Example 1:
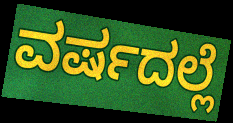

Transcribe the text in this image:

ವರ್ಷದಲ್ಲೆ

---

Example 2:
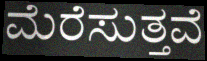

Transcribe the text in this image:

ಮೆರೆಸುತ್ತವೆ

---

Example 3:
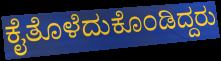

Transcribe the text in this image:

ಕೈತೊಳೆದುಕೊಂಡಿದ್ದರು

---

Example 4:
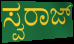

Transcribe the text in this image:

ಸ್ವರಾಜ್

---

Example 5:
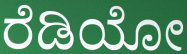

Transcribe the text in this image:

ರೆಡಿಯೋ